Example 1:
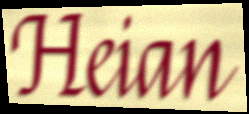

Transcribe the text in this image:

Heian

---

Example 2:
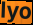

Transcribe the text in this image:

lyo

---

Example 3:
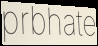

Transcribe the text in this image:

prbhate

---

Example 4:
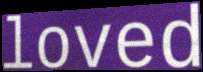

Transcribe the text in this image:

loved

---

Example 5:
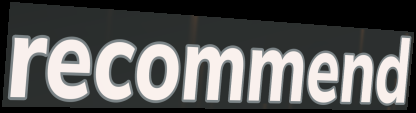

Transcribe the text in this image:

recommend